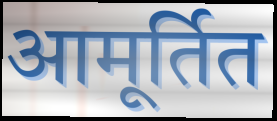
आमूर्तित